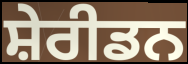
ਸ਼ੇਰੀਡਨ